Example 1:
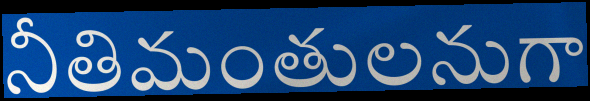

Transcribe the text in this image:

నీతిమంతులనుగా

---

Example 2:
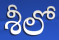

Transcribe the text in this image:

శీలో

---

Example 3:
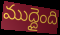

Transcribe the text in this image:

ముద్దైంది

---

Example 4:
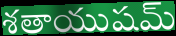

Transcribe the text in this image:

శతాయుషమ్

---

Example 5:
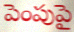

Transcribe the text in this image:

పెంపుపై